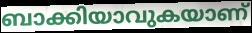
ബാക്കിയാവുകയാണ്